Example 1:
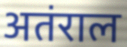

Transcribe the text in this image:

अतंराल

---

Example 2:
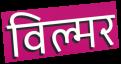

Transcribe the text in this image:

विल्मर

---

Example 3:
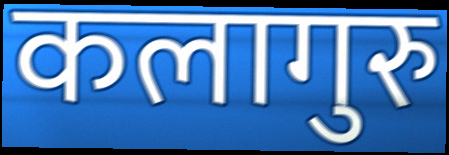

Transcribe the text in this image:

कलागुरु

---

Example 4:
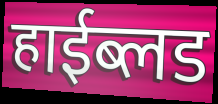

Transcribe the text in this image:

हाईब्लड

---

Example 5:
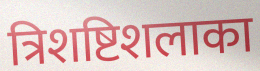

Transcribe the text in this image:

त्रिशष्टिशलाका